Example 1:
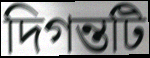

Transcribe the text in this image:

দিগন্তটি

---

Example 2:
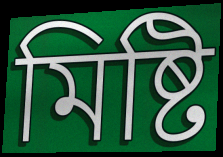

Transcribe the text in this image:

মিষ্টি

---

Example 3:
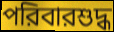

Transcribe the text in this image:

পরিবারশুদ্ধ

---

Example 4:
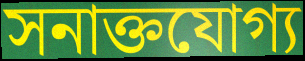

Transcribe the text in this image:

সনাক্তযোগ্য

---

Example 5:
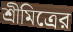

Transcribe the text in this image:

শ্রীমিত্রের